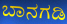
ಬಾನಗಡಿ